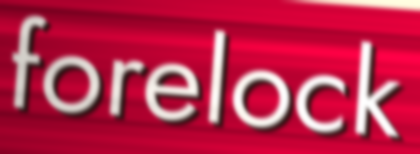
forelock